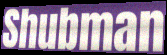
Shubman